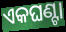
ଏକଘଣ୍ଟା